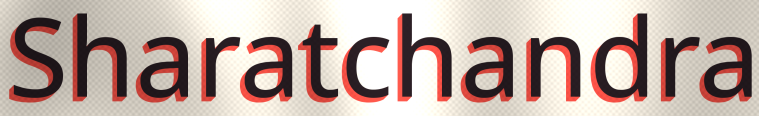
Sharatchandra